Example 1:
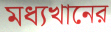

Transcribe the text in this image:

মধ্যখানের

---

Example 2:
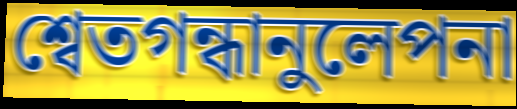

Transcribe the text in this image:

শ্বেতগন্ধানুলেপনা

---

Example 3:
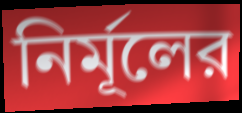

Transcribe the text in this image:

নির্মূলের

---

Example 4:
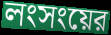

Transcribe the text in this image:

লংসংয়ের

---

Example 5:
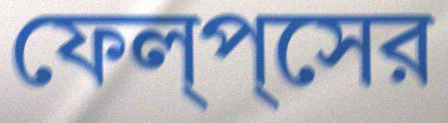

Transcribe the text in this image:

ফেল্‌প্‌সের